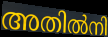
അതിൽനി